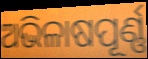
ଅଭିଳାଷପୂର୍ଣ୍ଣ